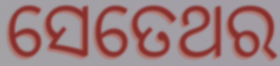
ସେତେଥର